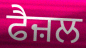
ਫੈਜ਼ਲ